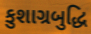
કુશાગ્રબુદ્ધિ